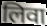
लिवा